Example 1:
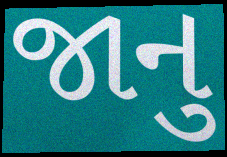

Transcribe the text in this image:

જાનુ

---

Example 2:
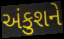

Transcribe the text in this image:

અંકુશને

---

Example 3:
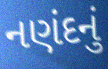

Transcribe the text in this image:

નણંદનું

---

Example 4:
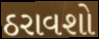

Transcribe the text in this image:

ઠરાવશો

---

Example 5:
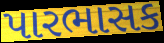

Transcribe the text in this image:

પારભાસક